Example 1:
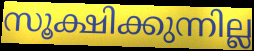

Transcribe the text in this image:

സൂക്ഷിക്കുന്നില്ല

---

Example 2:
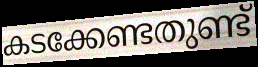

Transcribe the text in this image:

കടക്കേണ്ടതുണ്ട്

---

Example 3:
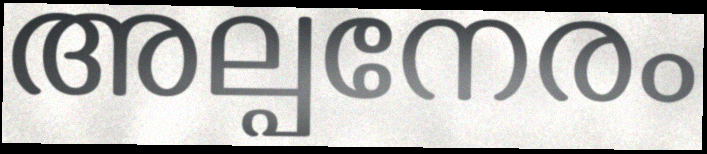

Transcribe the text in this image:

അല്പനേരം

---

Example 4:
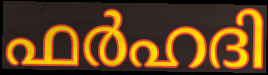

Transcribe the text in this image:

ഫർഹദി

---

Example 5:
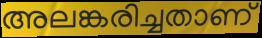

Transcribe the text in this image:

അലങ്കരിച്ചതാണ്